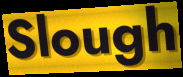
Slough